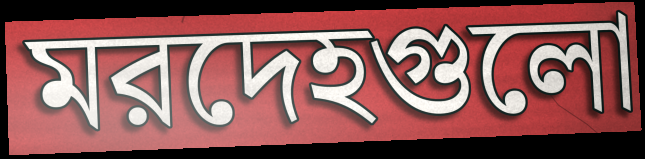
মরদেহগুলো